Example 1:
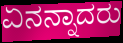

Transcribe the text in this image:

ಏನನ್ನಾದರು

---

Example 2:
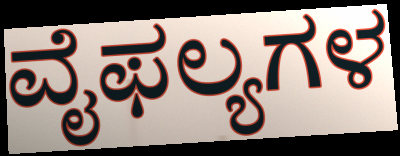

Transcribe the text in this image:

ವೈಫಲ್ಯಗಳ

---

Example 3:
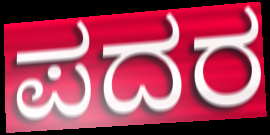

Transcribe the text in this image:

ಪದರ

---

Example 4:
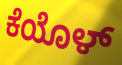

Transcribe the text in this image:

ಕೆಯೊಳ್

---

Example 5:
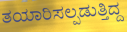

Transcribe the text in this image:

ತಯಾರಿಸಲ್ಪಡುತ್ತಿದ್ದ